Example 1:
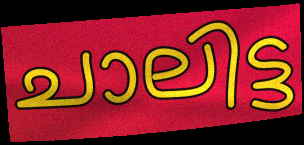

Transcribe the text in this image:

ചാലിട്ട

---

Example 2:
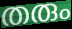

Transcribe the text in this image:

തരും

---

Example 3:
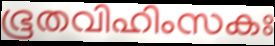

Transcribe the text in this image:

ഭൂതവിഹിംസകഃ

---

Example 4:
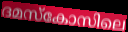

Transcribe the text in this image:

ദമസ്കോസിലെ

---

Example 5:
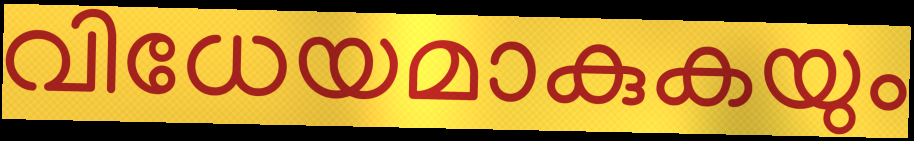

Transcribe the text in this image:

വിധേയമാകുകയും